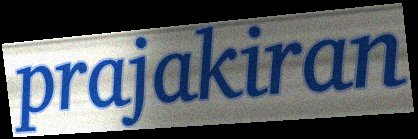
prajakiran